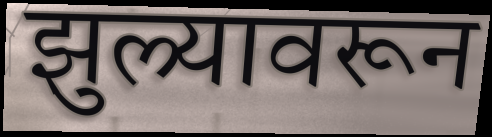
झुल्यावरून